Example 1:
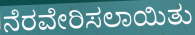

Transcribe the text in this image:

ನೆರವೇರಿಸಲಾಯಿತು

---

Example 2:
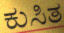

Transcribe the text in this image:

ಕುಸಿತ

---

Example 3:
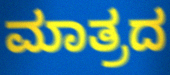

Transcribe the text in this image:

ಮಾತ್ರದ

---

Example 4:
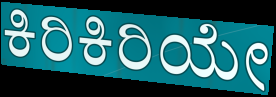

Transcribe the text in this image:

ಕಿರಿಕಿರಿಯೇ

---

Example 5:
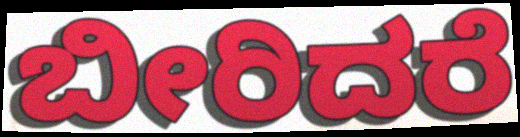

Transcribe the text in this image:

ಬೀರಿದರೆ